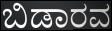
ಬಿಡಾರವ